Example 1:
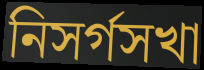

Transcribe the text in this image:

নিসর্গসখা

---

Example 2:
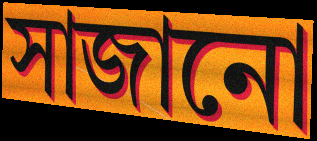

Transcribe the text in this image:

সাজানো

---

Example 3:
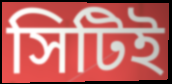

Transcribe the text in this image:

সিটিই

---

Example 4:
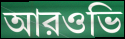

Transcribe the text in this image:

আরওভি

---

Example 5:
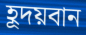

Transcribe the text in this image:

হূদয়বান